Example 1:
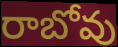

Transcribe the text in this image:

రాబోవు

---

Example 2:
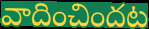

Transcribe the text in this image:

వాదించిందట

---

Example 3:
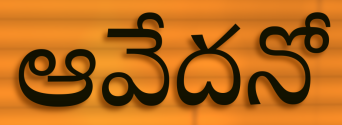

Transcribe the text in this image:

ఆవేదనో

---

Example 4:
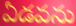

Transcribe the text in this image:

ఏడవను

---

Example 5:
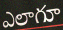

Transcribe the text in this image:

ఎలాగూ